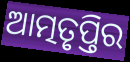
ଆତ୍ମତୃପ୍ତିର